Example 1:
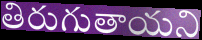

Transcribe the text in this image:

తిరుగుతాయని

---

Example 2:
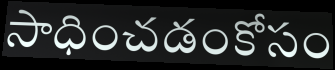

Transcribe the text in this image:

సాధించడంకోసం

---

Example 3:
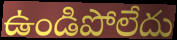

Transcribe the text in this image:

ఉండిపోలేదు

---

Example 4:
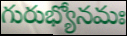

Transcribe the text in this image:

గురుభ్యోనమః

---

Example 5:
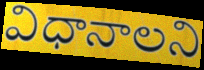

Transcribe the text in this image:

విధానాలని